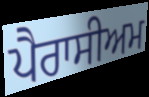
ਪੈਰਾਸੀਅਮ